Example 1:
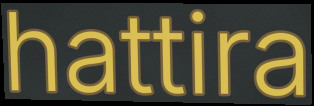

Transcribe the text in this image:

hattira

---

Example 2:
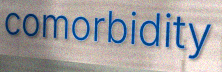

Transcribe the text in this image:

comorbidity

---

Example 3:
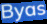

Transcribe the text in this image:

Byas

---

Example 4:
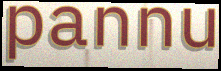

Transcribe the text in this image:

pannu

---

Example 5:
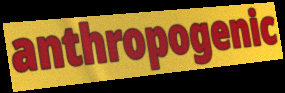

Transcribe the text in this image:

anthropogenic